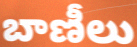
బాణీలు